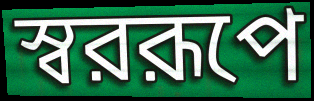
স্বররূপে